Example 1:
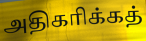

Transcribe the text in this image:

அதிகரிக்கத்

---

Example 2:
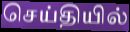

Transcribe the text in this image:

செய்தியில்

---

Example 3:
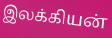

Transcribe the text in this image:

இலக்கியன்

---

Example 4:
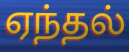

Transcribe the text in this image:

ஏந்தல்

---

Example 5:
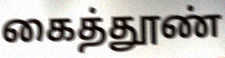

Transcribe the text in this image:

கைத்தூண்